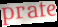
prate